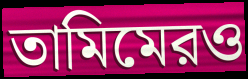
তামিমেরও